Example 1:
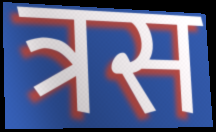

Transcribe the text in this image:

त्रस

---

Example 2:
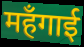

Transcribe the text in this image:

महँगाई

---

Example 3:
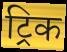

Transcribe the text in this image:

ट्रिक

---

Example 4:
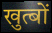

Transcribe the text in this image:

खुत्बों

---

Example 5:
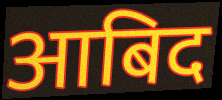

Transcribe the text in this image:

आबिद